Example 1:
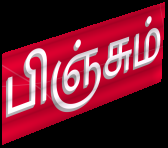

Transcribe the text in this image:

பிஞ்சும்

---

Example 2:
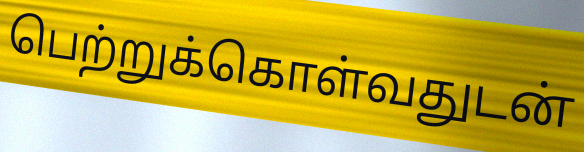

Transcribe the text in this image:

பெற்றுக்கொள்வதுடன்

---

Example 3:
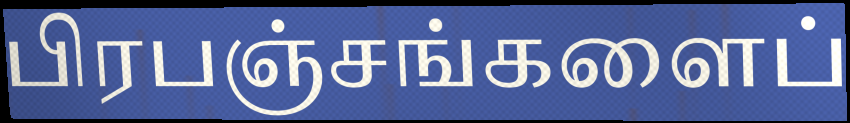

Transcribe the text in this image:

பிரபஞ்சங்களைப்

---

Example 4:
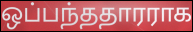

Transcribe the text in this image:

ஒப்பந்ததாரராக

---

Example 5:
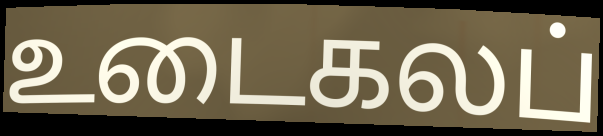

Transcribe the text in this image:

உடைகலப்